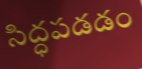
సిద్ధపడడం